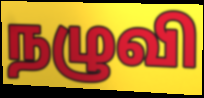
நழுவி